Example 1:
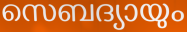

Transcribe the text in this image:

സെബദ്യായും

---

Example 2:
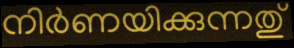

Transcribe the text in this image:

നിർണയിക്കുന്നതു്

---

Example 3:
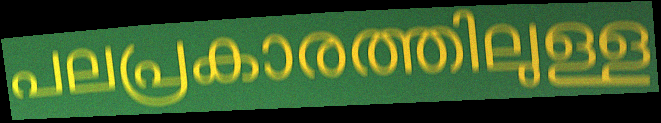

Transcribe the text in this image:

പലപ്രകാരത്തിലുള്ള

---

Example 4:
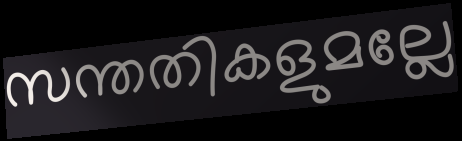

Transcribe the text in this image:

സന്തതികളുമല്ലേ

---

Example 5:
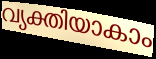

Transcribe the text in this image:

വ്യക്തിയാകാം